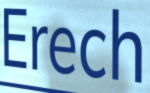
Erech